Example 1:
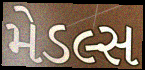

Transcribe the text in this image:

મેડલ્સ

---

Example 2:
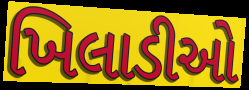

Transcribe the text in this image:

ખિલાડીઓ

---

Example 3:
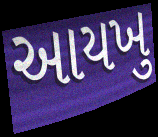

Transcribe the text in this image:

આયખુ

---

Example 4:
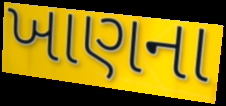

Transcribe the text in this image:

ખાણના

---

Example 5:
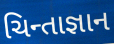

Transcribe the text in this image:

ચિન્તાજ્ઞાન